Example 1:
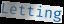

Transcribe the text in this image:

Letting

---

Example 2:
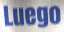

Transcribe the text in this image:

Luego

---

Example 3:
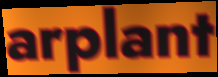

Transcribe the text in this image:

arplant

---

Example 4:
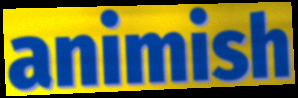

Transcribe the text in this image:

animish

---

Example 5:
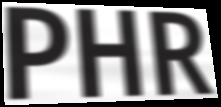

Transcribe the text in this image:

PHR